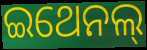
ଇଥେନଲ୍